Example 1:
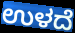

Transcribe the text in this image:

ಉಳದೆ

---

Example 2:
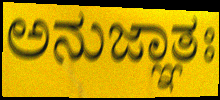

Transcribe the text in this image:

ಅನುಜ್ಞಾತಃ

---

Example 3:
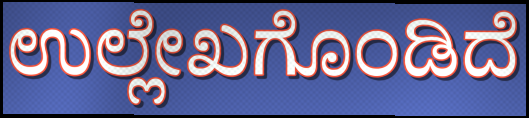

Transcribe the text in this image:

ಉಲ್ಲೇಖಗೊಂಡಿದೆ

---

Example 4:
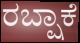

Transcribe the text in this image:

ರಬ್ಷಾಕೆ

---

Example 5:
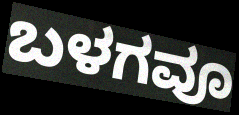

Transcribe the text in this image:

ಬಳಗವೂ